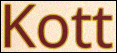
Kott